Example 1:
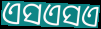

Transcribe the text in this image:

ଏସଏସଏ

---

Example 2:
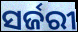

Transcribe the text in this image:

ସର୍ଜରୀ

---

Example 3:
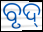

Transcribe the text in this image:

ବୃଦ୍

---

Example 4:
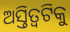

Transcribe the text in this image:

ଅସ୍ତିତ୍ୱଟିକୁ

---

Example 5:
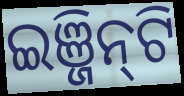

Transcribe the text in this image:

ଇଞ୍ଜିନ୍‌ଟି